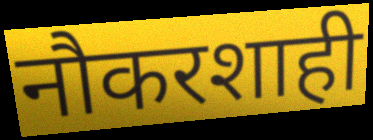
नौकरशाही